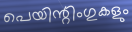
പെയിന്റിംഗുകളും